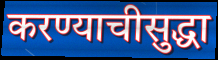
करण्याचीसुद्धा